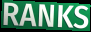
RANKS